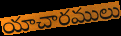
యాచారములు